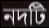
নদটি